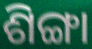
ଶିଙ୍ଗା